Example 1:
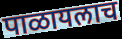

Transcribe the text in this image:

पाळायलाच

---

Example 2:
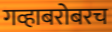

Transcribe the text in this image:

गव्हाबरोबरच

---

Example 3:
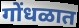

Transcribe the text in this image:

गोंधळात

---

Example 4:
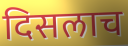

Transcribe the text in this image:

दिसलाच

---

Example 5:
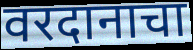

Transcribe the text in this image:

वरदानाचा